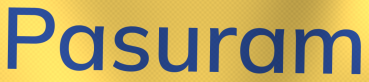
Pasuram